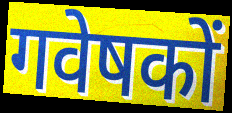
गवेषकों